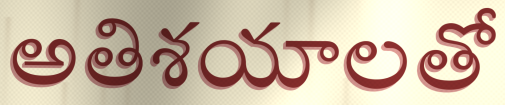
అతిశయాలతో